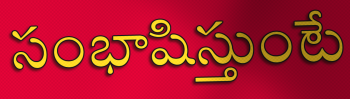
సంభాషిస్తుంటే